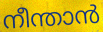
നീന്താൻ